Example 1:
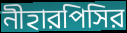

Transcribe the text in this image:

নীহারপিসির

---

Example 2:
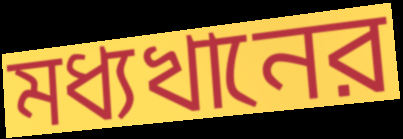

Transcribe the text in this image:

মধ্যখানের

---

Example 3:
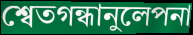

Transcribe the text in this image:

শ্বেতগন্ধানুলেপনা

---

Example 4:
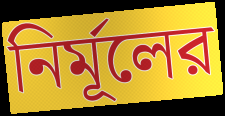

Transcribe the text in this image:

নির্মূলের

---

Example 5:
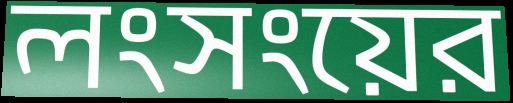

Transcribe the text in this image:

লংসংয়ের